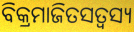
ବିକ୍ରମାଜିତସତ୍ଵସ୍ୟ